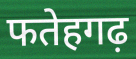
फतेहगढ़